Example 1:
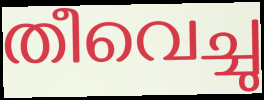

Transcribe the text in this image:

തീവെച്ചു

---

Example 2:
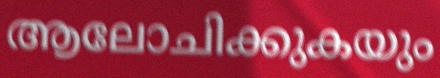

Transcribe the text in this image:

ആലോചിക്കുകയും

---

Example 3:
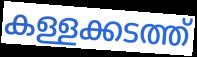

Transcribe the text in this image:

കള്ളക്കടത്ത്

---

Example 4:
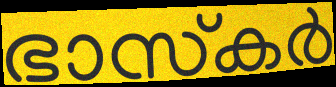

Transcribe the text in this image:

ഭാസ്‌കർ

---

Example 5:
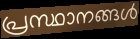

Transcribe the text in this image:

പ്രസ്ഥാനങ്ങൾ